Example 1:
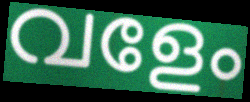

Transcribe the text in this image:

വളേം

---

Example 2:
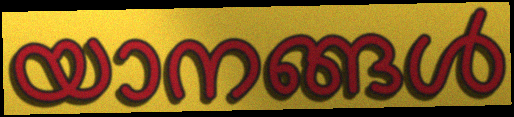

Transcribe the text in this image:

യാനങ്ങൾ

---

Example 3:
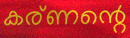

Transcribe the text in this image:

കര്ണന്റെ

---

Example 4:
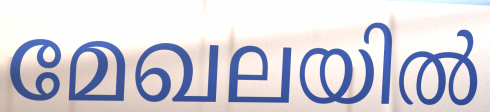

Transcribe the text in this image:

മേഖലയിൽ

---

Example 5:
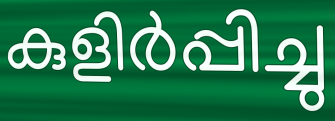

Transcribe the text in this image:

കുളിർപ്പിച്ചു